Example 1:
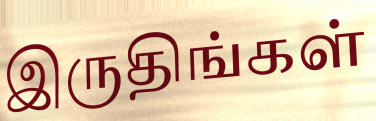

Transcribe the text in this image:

இருதிங்கள்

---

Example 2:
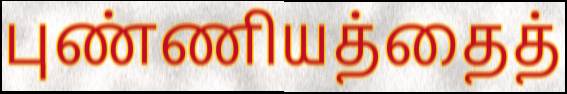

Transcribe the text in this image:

புண்ணியத்தைத்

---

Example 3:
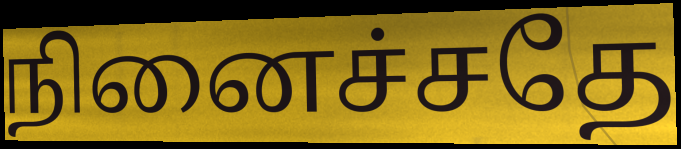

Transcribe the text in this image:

நினைச்சதே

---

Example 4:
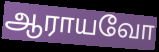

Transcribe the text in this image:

ஆராயவோ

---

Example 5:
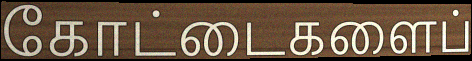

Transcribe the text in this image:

கோட்டைகளைப்